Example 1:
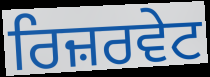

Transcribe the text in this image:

ਰਿਜ਼ਰਵੇਟ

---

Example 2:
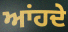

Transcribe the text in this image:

ਆਂਹਦੇ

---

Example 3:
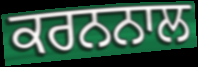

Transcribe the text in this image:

ਕਰਨਨਾਲ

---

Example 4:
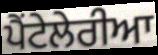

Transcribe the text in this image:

ਪੈਂਟੇਲੇਰੀਆ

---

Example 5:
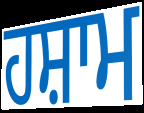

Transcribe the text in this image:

ਹਸ਼ਾਮ